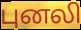
புனலி